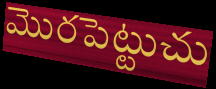
మొరపెట్టుచు